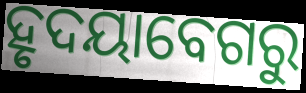
ହୃଦୟାବେଗରୁ